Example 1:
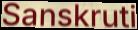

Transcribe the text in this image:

Sanskruti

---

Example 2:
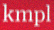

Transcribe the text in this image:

kmpl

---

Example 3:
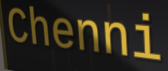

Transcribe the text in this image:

Chenni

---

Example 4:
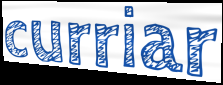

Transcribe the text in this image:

curriar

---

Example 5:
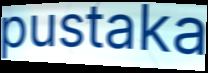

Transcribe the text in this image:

pustaka